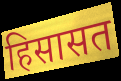
हिसासत